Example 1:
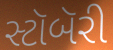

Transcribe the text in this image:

સ્ટૉબૅરી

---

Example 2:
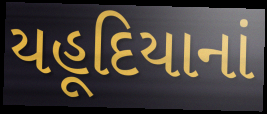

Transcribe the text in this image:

યહૂદિયાનાં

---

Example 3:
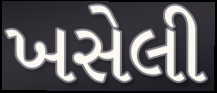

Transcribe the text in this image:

ખસેલી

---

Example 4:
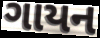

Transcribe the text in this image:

ગાયન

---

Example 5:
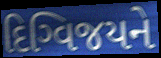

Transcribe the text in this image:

દિગ્વિજયને